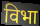
विभा